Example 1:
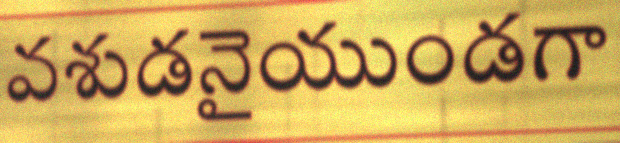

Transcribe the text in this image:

వశుడనైయుండగా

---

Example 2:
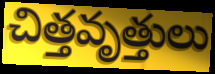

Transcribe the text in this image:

చిత్తవృత్తులు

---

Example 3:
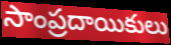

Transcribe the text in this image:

సాంప్రదాయికులు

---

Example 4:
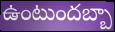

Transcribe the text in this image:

ఉంటుందబ్బా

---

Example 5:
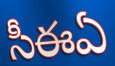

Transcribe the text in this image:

సీఈఏ